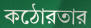
কঠোরতার